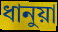
ধানুয়া